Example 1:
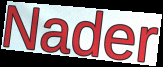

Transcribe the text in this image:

Nader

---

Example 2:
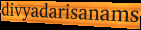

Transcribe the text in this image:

divyadarisanams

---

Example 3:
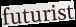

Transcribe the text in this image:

futurist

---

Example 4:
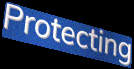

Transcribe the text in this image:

Protecting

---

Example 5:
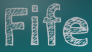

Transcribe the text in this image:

Fife